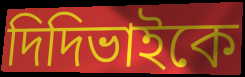
দিদিভাইকে